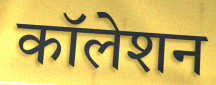
कॉलेशन